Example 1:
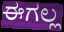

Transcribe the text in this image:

ಈಗಲ್ಲ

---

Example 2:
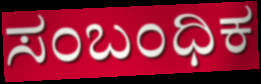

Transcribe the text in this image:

ಸಂಬಂಧಿಕ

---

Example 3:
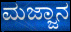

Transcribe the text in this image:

ಮಜ್ಜಾನ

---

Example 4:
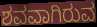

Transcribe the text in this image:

ಶವವಾಗಿರುವ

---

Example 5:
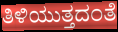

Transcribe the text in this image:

ತಿಳಿಯುತ್ತದಂತೆ